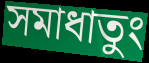
সমাধাতুং